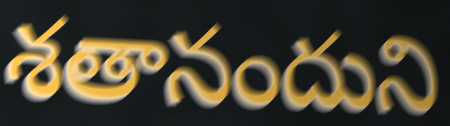
శతానందుని